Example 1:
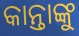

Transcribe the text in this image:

କାନ୍ତାଙ୍କୁ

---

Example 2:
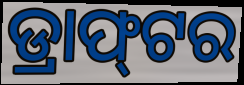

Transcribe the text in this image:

ଡ୍ରାଫ୍‌ଟର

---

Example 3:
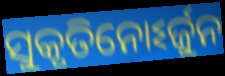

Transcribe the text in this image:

ସୁକୃତିନୋଽର୍ଜୁନ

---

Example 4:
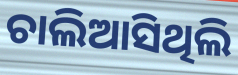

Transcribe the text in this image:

ଚାଲିଆସିଥିଲି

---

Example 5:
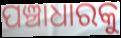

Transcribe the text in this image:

ପଞ୍ଚାଧାରକୁ